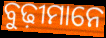
ବୁଢ଼ୀମାନେ